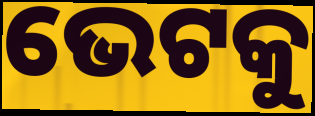
ଭେଟକୁ